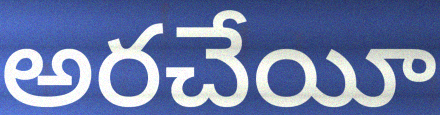
అరచేయీ